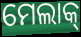
ମେଲାକ୍